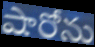
షారోను